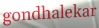
gondhalekar